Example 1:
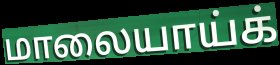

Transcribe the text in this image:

மாலையாய்க்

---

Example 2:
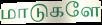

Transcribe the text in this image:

மாடுகளே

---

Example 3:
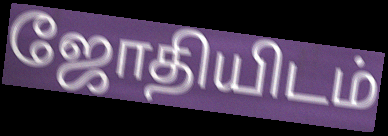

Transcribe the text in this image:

ஜோதியிடம்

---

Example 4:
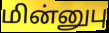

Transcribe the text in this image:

மின்னுபு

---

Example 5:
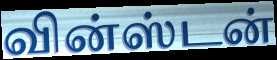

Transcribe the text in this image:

வின்ஸ்டன்